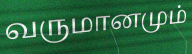
வருமானமும்